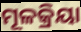
ମୂଳକ୍ରିୟା